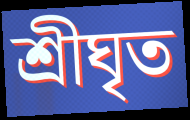
শ্রীঘৃত